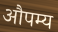
औपम्य